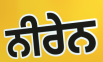
ਨੀਰੇਨ